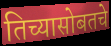
तिच्यासोबतचे